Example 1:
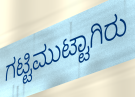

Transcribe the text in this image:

ಗಟ್ಟಿಮುಟ್ಟಾಗಿರು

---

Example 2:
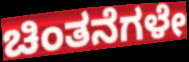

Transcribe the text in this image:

ಚಿಂತನೆಗಳೇ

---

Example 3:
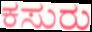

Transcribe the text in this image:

ಕಸುರು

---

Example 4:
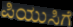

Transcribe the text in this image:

ಪಿಯುಸಿಗೆ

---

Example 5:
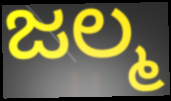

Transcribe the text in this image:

ಜಲ್ಮ